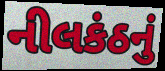
નીલકંઠનું